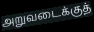
அறுவடைக்குத்